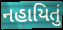
નહાયિતું